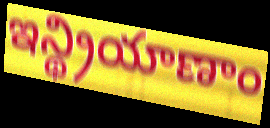
ఇన్థ్రియాణాం